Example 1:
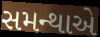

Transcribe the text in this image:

સમન્થાએ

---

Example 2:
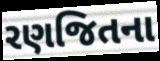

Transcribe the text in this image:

રણજિતના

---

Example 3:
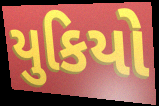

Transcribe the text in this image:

યુકિયો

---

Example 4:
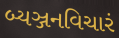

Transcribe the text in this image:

બ્યઞ્જનવિચારં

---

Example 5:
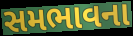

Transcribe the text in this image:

સમભાવના